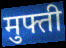
मुफ्ती